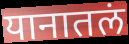
यानातलं